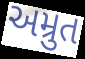
અમ્રુત